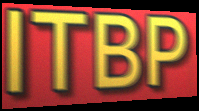
ITBP